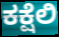
ಕಕ್ಷೆಲಿ